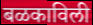
बळकाविली